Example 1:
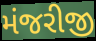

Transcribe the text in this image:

મંજરીજી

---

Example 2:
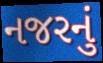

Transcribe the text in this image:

નજરનું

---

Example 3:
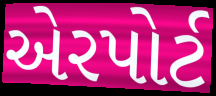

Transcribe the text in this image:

એરપોર્ટ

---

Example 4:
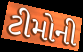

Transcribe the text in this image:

ટીમોની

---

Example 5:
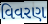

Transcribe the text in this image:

વિવરણ